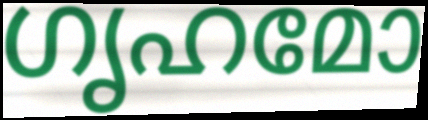
ഗൃഹമോ